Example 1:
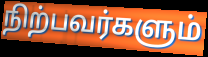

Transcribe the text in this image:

நிற்பவர்களும்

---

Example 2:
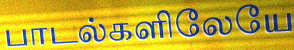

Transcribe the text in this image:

பாடல்களிலேயே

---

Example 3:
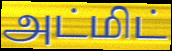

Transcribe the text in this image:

அட்மிட்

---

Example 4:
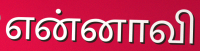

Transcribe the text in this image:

என்னாவி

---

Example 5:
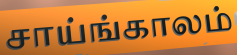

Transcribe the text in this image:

சாய்ங்காலம்